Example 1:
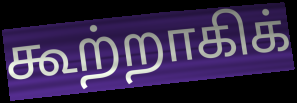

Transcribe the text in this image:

கூற்றாகிக்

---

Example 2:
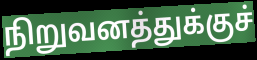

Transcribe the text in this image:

நிறுவனத்துக்குச்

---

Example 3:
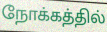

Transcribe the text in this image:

நோக்கத்தில்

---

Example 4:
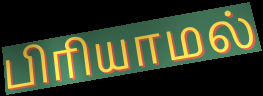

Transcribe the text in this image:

பிரியாமல்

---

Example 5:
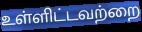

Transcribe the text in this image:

உள்ளிட்டவற்றை